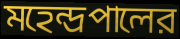
মহেন্দ্রপালের